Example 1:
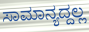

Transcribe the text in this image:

ಸಾಮಾನ್ಯದ್ದಲ್ಲ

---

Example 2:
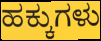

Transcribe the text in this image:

ಹಕ್ಕುಗಳು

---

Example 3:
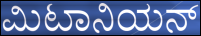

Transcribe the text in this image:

ಮಿಟಾನಿಯನ್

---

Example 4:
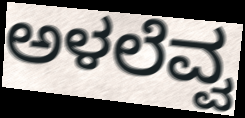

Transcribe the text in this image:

ಅಳಲೆವ್ವ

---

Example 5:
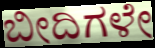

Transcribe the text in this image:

ಬೀದಿಗಳೇ